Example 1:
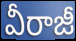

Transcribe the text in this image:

వీరాజీ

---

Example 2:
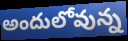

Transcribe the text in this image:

అందులోవున్న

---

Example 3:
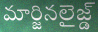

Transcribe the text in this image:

మార్జినలైజ్డ్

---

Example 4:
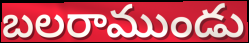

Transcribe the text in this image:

బలరాముండు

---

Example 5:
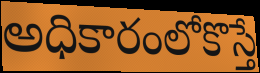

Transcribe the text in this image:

అధికారంలోకొస్తే